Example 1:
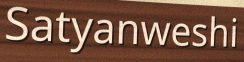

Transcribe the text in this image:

Satyanweshi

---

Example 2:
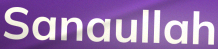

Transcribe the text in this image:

Sanaullah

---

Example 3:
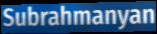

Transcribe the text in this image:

Subrahmanyan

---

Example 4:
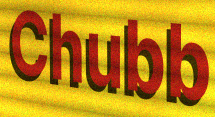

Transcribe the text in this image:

Chubb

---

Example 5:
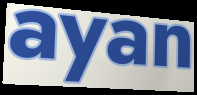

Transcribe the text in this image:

ayan